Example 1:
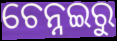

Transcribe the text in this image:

ଚେନ୍ନଇରୁ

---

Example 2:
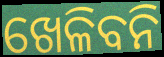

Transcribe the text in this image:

ଖେଳିବନି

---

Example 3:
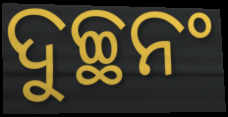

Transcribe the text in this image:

ଦୁଚ୍ଛନଂ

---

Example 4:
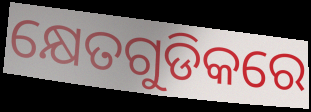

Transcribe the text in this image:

କ୍ଷେତଗୁଡିକରେ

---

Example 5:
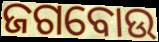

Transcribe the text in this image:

ଜଗବୋଉ